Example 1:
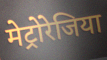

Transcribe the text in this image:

मेट्रोरेजिया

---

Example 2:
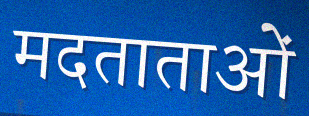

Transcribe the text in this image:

मदताताओं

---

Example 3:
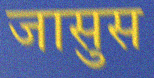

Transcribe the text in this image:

जासुस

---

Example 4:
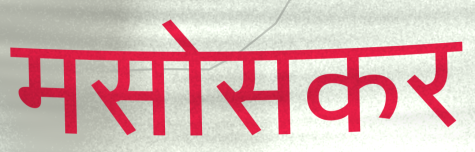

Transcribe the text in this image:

मसोसकर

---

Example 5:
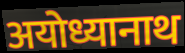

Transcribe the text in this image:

अयोध्यानाथ